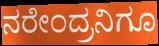
ನರೇಂದ್ರನಿಗೂ